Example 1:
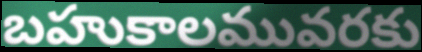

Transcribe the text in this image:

బహుకాలమువరకు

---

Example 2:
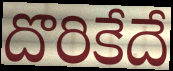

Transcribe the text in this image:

దొరికేదే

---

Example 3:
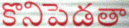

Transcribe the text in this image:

కొనిపెడతా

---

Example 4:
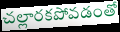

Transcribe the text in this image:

చల్లారకపోవడంతో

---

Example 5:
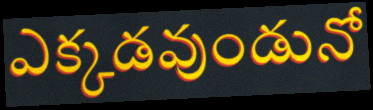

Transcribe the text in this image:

ఎక్కడవుండునో